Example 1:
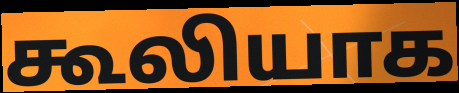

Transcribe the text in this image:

கூலியாக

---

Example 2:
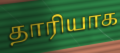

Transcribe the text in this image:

தாரியாக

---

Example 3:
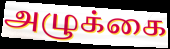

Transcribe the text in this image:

அழுக்கை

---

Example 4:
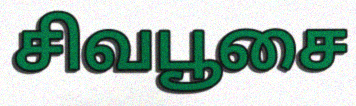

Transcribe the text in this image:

சிவபூசை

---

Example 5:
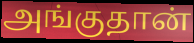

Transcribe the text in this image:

அங்குதான்